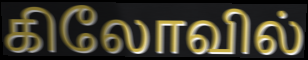
கிலோவில்